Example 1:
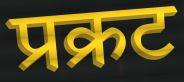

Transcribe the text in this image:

प्रक्रट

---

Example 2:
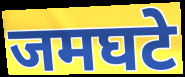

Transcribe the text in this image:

जमघटे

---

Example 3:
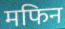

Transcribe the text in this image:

मफिन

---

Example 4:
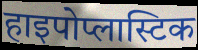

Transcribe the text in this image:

हाइपोप्लास्टिक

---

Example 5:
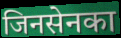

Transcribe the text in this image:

जिनसेनका